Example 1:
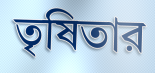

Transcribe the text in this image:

তৃষিতার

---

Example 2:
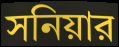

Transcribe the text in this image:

সনিয়ার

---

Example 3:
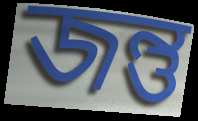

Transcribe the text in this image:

জন্তু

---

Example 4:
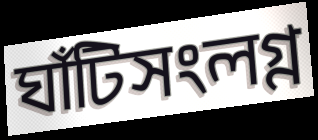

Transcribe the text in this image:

ঘাঁটিসংলগ্ন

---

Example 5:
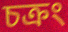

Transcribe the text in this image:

চক্রং